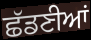
ਛੱਡਣੀਆਂ